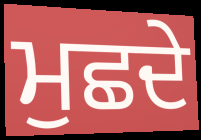
ਮੁਛਦੇ